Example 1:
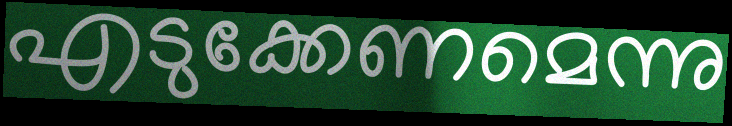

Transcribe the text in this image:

എടുക്കേണമെന്നു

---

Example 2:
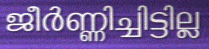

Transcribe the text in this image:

ജീർണ്ണിച്ചിട്ടില്ല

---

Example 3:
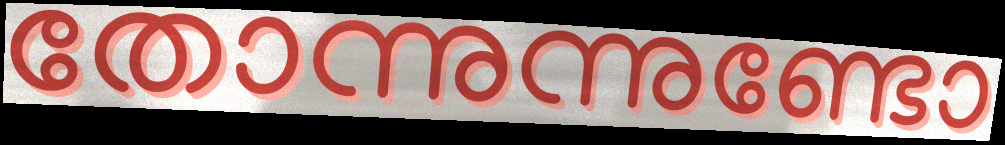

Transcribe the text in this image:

തോന്നുന്നുണ്ടോ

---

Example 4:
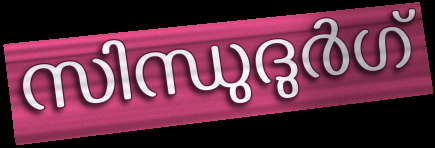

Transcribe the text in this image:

സിന്ധുദുർഗ്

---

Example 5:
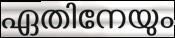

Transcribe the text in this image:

ഏതിനേയും